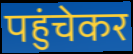
पहुंचेकर